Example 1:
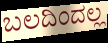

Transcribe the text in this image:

ಬಲದಿಂದಲ್ಲ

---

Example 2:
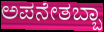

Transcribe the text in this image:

ಅಪನೇತಬ್ಬಾ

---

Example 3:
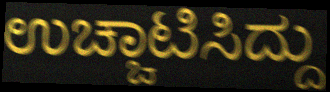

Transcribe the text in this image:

ಉಚ್ಚಾಟಿಸಿದ್ದು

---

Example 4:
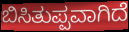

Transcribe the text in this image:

ಬಿಸಿತುಪ್ಪವಾಗಿದೆ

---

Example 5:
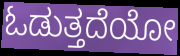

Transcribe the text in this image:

ಓಡುತ್ತದೆಯೋ